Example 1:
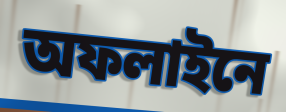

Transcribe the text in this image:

অফলাইনে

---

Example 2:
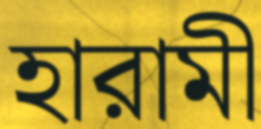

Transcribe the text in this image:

হারামী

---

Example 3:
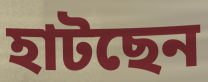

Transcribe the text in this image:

হাটছেন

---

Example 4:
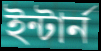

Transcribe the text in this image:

ইন্টার্ন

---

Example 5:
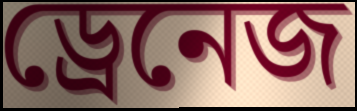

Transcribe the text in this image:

ড্রেনেজ